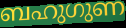
ബഹുഗുണ